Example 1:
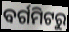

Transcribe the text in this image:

ବର୍ଗମିଟରୁ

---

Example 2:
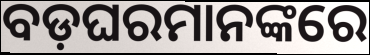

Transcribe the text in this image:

ବଡ଼ଘରମାନଙ୍କରେ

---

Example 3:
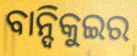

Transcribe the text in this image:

ବାନ୍ଦିକୁଇର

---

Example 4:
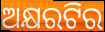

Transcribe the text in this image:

ଅକ୍ଷରଟିର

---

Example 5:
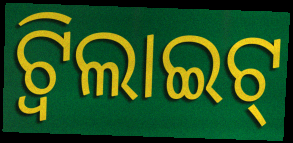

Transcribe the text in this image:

ଟ୍ୱିଲାଇଟ୍